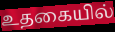
உதகையில்